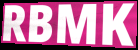
RBMK